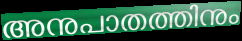
അനുപാതത്തിനും